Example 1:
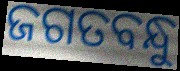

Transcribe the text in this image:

ଜଗତବନ୍ଧୁ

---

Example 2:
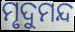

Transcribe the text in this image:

ମୃଦୁମନ୍ଦ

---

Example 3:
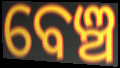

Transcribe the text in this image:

ବେଞ୍ଚ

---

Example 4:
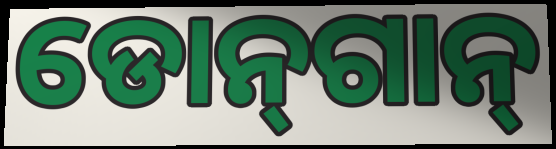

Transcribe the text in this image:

ଡୋନ୍‌ଗାନ୍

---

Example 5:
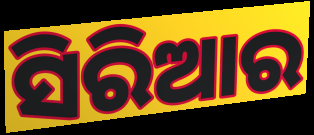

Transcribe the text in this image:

ସିରିଆର